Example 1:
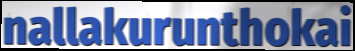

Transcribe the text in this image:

nallakurunthokai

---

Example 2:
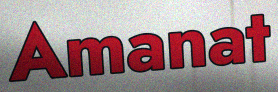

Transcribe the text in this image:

Amanat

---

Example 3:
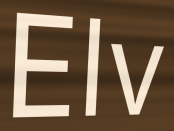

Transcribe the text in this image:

Elv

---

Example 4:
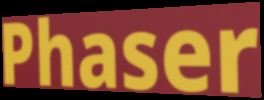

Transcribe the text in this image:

Phaser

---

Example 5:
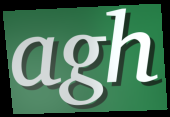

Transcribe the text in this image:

agh